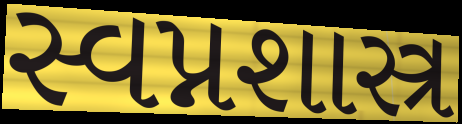
સ્વપ્નશાસ્ત્ર